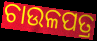
ଚାଉଳପତ୍ର